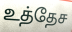
உத்தேச